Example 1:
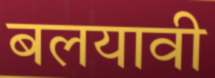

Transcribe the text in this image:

बलयावी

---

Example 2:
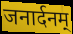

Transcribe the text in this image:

जनार्दनम्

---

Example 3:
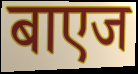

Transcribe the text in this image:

बाएज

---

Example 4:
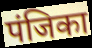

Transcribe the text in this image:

पंजिका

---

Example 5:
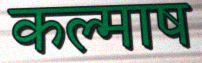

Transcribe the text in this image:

कल्माष